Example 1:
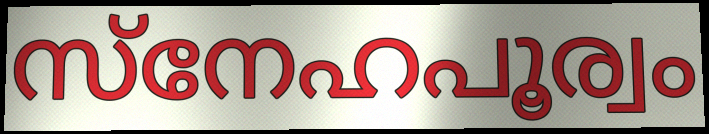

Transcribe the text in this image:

സ്നേഹപൂര്വം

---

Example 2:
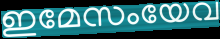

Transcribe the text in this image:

ഇമേസംയേവ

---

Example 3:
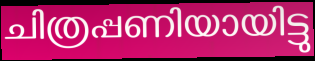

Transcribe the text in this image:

ചിത്രപ്പണിയായിട്ടു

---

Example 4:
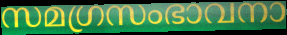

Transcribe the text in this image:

സമഗ്രസംഭാവനാ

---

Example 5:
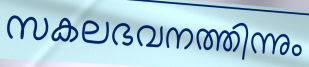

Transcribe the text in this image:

സകലഭവനത്തിന്നും